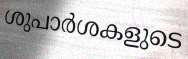
ശുപാർശകളുടെ